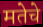
मतेचे